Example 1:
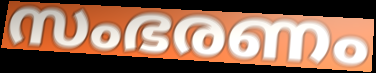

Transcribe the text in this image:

സംഭരണം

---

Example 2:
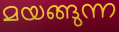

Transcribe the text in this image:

മയങ്ങുന്ന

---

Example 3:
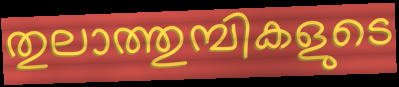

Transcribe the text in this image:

തുലാത്തുമ്പികളുടെ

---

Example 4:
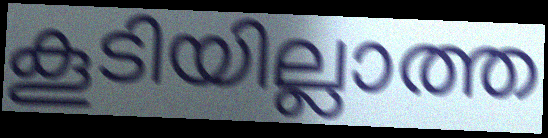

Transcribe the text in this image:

കൂടിയില്ലാത്ത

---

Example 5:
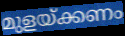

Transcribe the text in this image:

മുളയ്ക്കണം